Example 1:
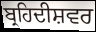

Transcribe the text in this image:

ਬ੍ਰਹਿਦੀਸ਼ਵਰ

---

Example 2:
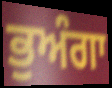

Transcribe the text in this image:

ਭੁਅੰਗਾ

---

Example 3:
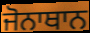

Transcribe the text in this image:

ਜੋਨਾਥਾਨ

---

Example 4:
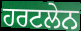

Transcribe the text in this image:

ਹਰਟਲੇਨ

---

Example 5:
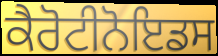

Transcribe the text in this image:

ਕੈਰੋਟੀਨੋਇਡਸ